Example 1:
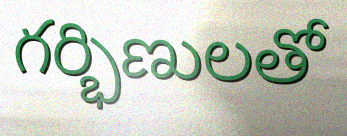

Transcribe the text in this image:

గర్భిణులతో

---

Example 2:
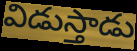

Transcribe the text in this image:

విడుస్తాడు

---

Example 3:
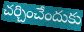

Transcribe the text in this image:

చర్చించేందుకు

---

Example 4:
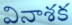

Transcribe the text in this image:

వినాశక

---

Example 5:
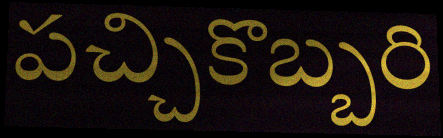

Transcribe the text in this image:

పచ్చికొబ్బరి